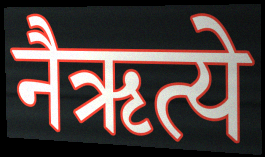
नैऋत्ये